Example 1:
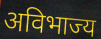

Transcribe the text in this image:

अविभाज्य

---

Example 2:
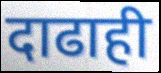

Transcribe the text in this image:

दाढाही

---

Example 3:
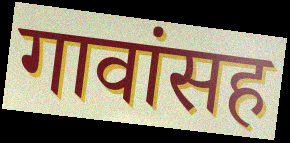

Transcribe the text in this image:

गावांसह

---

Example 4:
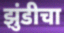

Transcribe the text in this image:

झुंडीचा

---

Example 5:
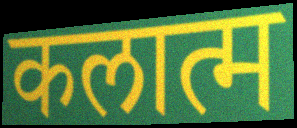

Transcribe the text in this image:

कलात्म